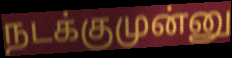
நடக்குமுன்னு